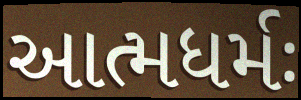
આત્મધર્મઃ